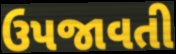
ઉપજાવતી